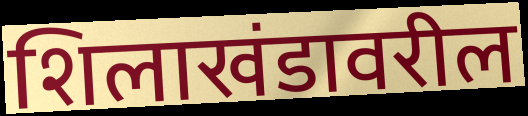
शिलाखंडावरील